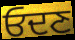
ਓਦਣ